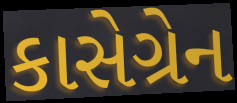
કાસેગ્રેન